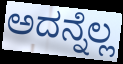
ಅದನ್ನೆಲ್ಲ